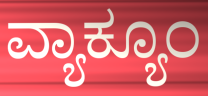
ವ್ಯಾಕ್ಯೂಂ